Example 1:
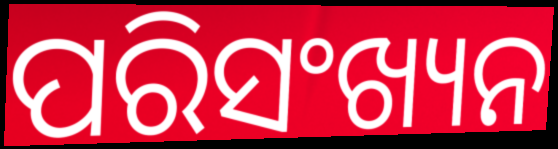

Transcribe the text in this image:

ପରିସଂଖ୍ୟନ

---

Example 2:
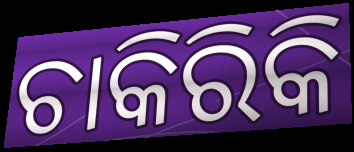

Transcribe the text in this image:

ଚାକିରିକି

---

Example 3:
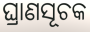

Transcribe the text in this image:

ଘ୍ରାଣସୂଚକ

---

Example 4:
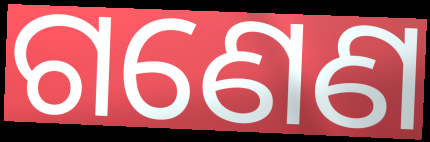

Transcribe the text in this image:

ଗଣେଣ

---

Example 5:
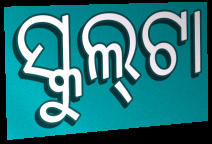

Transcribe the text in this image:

ସ୍କୁଲ୍‍ଟା